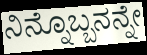
ನಿನ್ನೊಬ್ಬನನ್ನೇ